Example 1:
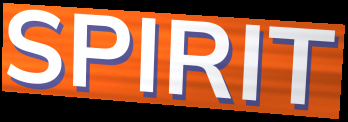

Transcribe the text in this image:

SPIRIT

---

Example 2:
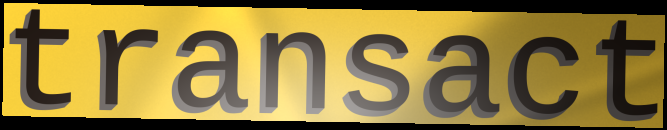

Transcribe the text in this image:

transact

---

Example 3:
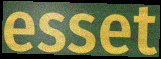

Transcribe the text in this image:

esset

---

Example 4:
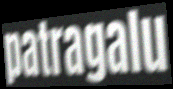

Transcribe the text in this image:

patragalu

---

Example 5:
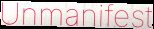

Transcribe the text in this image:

Unmanifest